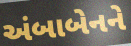
અંબાબેનને